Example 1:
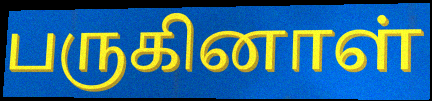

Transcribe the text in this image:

பருகினாள்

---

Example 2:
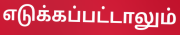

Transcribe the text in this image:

எடுக்கப்பட்டாலும்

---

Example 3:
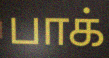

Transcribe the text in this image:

பாக்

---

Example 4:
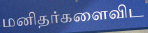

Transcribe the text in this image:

மனிதர்களைவிட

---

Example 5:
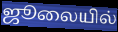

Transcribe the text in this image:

ஜூலையில்